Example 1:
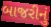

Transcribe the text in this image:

બાજરીનું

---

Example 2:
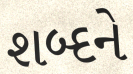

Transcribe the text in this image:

શબ્દને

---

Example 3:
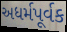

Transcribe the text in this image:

અધર્મપૂર્વક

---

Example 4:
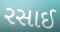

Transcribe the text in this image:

રસાઈ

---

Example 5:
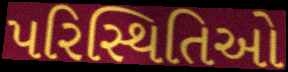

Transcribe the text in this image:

પરિસ્થિતિઓ